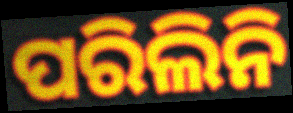
ପରିଲିନି